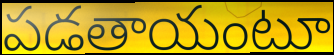
పడతాయంటూ